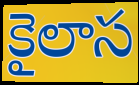
కైలాస